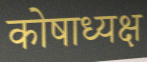
कोषाध्यक्ष